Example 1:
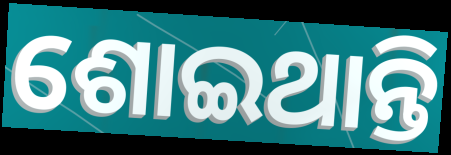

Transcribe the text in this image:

ଶୋଇଥାନ୍ତି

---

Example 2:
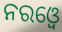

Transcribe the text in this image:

ନରଓ୍ୱେ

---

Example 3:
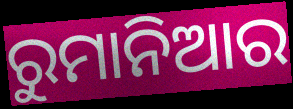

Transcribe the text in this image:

ରୁମାନିଆର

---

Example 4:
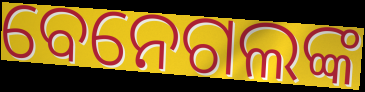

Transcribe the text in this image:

ବେନେଗଲଙ୍କ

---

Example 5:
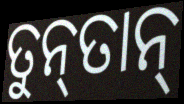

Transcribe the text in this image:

ତୁନ୍‍ତାନ୍